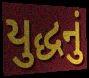
યુદ્ધનું